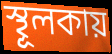
স্থূলকায়